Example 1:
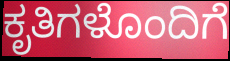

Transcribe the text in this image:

ಕೃತಿಗಳೊಂದಿಗೆ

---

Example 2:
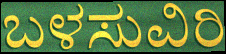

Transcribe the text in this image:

ಬಳಸುವಿರಿ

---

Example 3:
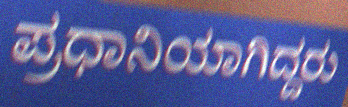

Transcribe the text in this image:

ಪ್ರಧಾನಿಯಾಗಿದ್ದರು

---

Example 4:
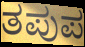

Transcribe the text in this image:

ತಪುಪ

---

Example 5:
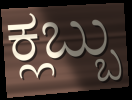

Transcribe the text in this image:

ಕ್ಲಬ್ಬು